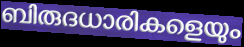
ബിരുദധാരികളെയും